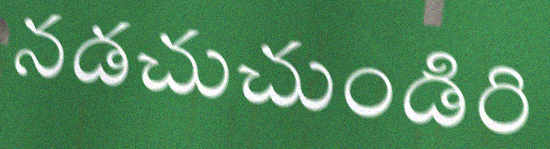
నడచుచుండిరి